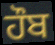
ਹੌਬ